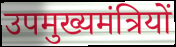
उपमुख्यमंत्रियों